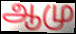
ஆமு